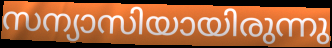
സന്യാസിയായിരുന്നു